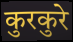
कुरकुरे